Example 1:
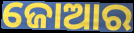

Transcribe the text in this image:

ଜୋଆର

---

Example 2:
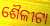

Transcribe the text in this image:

ଶୈଳୀଟା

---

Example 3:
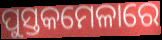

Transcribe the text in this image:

ପୁସ୍ତକମେଳାରେ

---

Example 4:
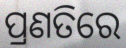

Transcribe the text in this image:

ପ୍ରଣତିରେ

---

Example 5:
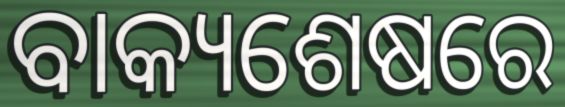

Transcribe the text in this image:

ବାକ୍ୟଶେଷରେ